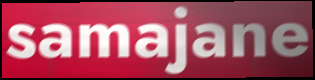
samajane